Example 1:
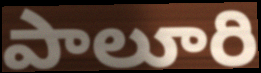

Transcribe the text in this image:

పాలూరి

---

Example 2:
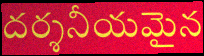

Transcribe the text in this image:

దర్శనీయమైన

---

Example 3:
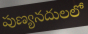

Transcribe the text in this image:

పుణ్యనదులలో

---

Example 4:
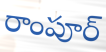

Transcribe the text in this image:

రాంపూర్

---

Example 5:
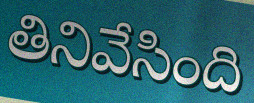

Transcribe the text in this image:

తినివేసింది